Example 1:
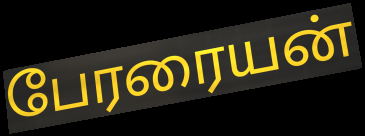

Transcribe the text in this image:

பேரரையன்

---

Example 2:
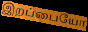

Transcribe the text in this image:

இறப்பையோ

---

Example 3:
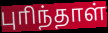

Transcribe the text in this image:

புரிந்தாள்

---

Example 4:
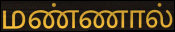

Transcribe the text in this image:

மண்ணால்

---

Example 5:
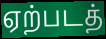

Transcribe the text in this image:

ஏற்படத்